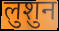
लुशुन